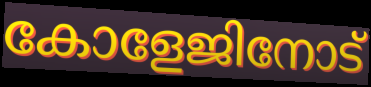
കോളേജിനോട്